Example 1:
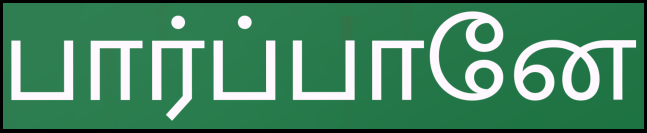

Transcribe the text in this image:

பார்ப்பானே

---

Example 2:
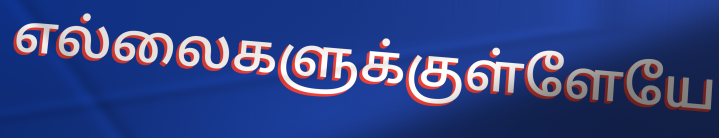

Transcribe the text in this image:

எல்லைகளுக்குள்ளேயே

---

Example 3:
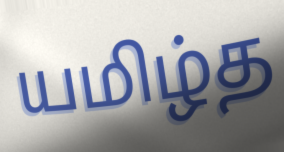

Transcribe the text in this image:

யமிழ்த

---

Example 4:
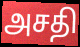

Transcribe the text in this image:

அசதி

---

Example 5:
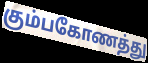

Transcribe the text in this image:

கும்பகோணத்து